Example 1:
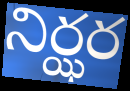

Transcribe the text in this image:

నిర్ఝర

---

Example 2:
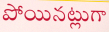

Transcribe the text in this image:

పోయినట్లుగా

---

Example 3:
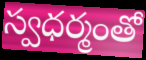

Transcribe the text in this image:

స్వధర్మంతో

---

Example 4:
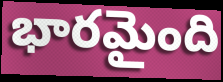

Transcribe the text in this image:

భారమైంది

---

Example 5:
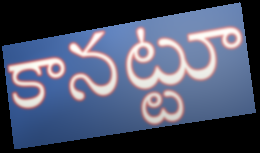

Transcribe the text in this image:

కానట్టూ